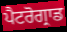
ਪੈਟਰੋਗ੍ਰਾਡ